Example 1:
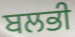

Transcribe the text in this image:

ਬਲਭੀ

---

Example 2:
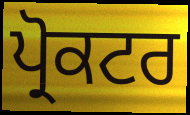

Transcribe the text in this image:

ਪ੍ਰੋਕਟਰ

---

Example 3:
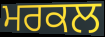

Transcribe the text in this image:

ਮਰਕਲ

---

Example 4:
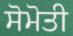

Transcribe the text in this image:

ਸੋਮੋਤੀ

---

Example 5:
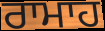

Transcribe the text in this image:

ਰਾਮਾਹ